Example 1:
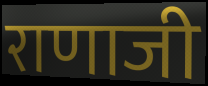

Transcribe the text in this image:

राणाजी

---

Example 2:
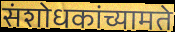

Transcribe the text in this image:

संशोधकांच्यामते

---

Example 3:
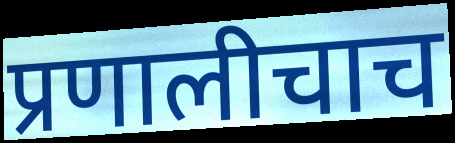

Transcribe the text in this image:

प्रणालीचाच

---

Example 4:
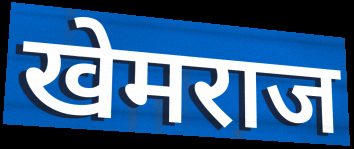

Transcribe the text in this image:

खेमराज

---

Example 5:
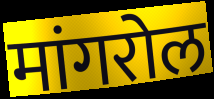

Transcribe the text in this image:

मांगरोल